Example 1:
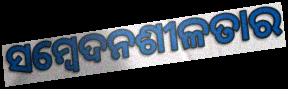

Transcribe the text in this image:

ସମ୍ୱେଦନଶୀଳତାର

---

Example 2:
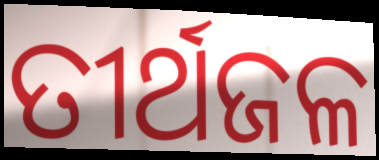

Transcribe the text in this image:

ତୀର୍ଥଜଳ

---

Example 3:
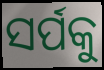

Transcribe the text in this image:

ସର୍ପକୁ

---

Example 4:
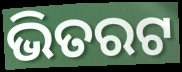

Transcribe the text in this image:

ଭିତରଟ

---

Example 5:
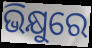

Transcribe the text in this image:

ଭିକ୍ଷୁରେ